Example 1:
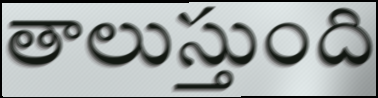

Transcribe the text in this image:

తాలుస్తుంది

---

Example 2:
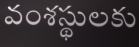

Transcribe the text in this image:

వంశస్థులకు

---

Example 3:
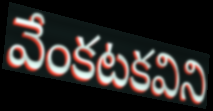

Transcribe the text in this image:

వేంకటకవిని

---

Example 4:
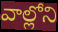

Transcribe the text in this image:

వాల్లోని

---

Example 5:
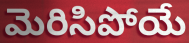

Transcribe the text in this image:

మెరిసిపోయే